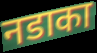
नडाका